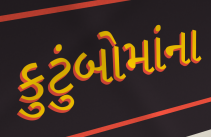
કુટુંબોમાંના